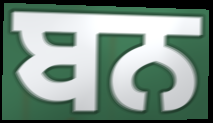
ਬਨ